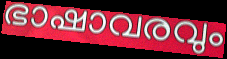
ഭാഷാവരവും